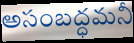
అసంబద్ధమనీ